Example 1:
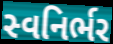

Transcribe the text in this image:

સ્વનિર્ભર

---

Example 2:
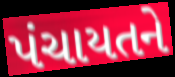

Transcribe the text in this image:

પંચાયતને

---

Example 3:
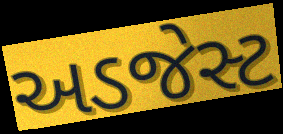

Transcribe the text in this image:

અડજેસ્ટ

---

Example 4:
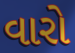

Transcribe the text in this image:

વારો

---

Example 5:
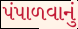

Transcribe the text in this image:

પંપાળવાનું